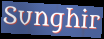
Sunghir